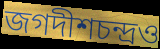
জগদীশচন্দ্রও